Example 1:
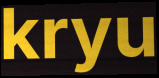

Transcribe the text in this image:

kryu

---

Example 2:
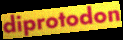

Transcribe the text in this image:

diprotodon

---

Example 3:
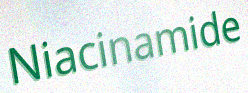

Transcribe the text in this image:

Niacinamide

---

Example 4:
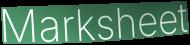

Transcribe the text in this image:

Marksheet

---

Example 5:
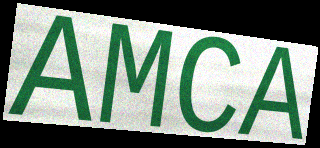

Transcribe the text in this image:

AMCA